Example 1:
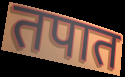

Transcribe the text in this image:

तपात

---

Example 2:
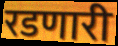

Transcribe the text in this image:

रडणारी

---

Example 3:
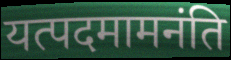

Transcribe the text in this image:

यत्पदमामनंति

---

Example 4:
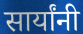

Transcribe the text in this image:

सार्यांनी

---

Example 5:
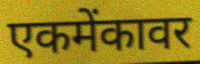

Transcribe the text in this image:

एकमेंकावर